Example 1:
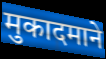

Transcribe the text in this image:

मुकादमाने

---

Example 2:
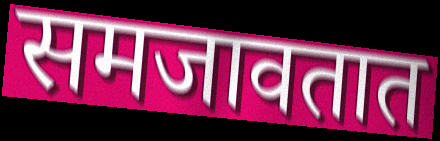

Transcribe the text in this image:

समजावतात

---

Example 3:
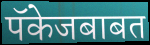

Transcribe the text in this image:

पॅकेजबाबत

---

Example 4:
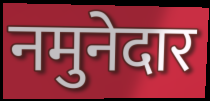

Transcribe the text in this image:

नमुनेदार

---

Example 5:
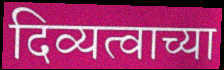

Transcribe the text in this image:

दिव्यत्वाच्या